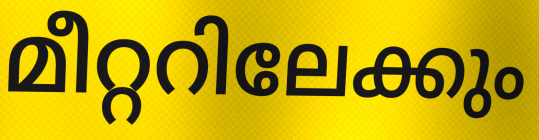
മീറ്ററിലേക്കും